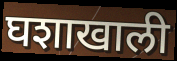
घशाखाली